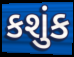
કશુંક